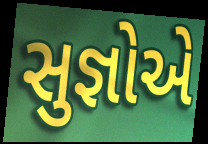
સુજ્ઞોએ